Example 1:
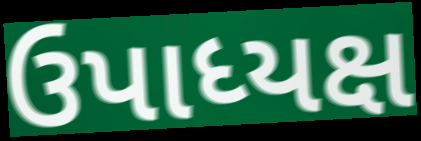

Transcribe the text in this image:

ઉપાધ્યક્ષ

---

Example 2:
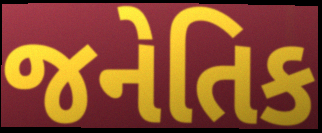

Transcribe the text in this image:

જનેતિક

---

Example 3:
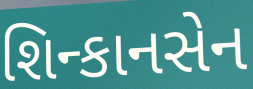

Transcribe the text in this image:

શિન્કાનસેન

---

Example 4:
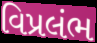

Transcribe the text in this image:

વિપ્રલંભ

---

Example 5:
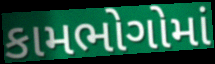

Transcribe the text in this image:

કામભોગોમાં